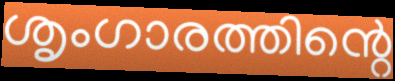
ശൃംഗാരത്തിന്റെ